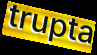
trupta